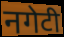
नगेटी